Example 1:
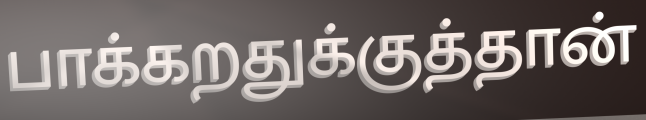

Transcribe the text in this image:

பாக்கறதுக்குத்தான்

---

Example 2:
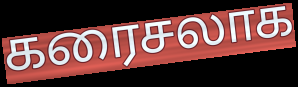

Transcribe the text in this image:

கரைசலாக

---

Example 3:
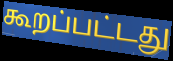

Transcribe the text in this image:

கூறப்பட்டது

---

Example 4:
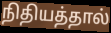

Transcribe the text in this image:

நிதியத்தால்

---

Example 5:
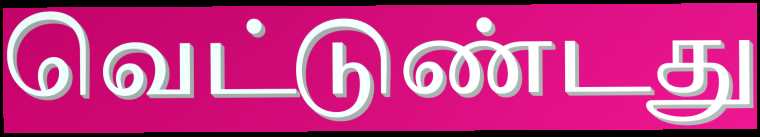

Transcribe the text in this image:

வெட்டுண்டது